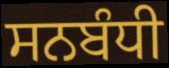
ਸਨਬੰਧੀ